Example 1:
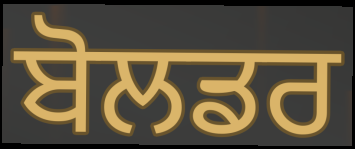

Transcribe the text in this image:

ਬੋਲਡਰ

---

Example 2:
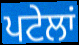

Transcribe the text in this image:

ਪਟੇਲਾਂ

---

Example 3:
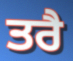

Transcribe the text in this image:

ਤਰੈ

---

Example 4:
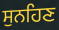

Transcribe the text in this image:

ਸੁਨਹਿਣ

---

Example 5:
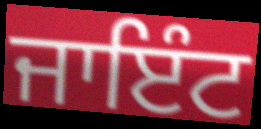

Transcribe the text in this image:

ਜਾਇੰਟ